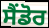
ਸੈਂਡੋਰ